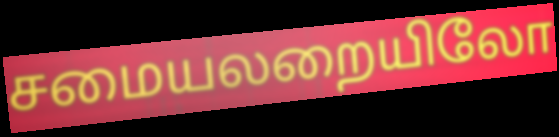
சமையலறையிலோ